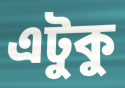
এটুকু